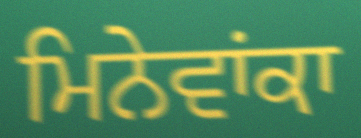
ਮਿਨੇਵਾਂਕਾ